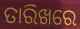
ତାରିଖରେ